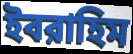
ইবরাহিম